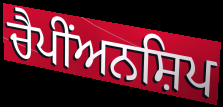
ਚੈਪੀਂਅਨਸ਼ਿਪ